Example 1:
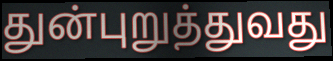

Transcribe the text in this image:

துன்புறுத்துவது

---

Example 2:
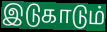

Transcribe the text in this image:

இடுகாடும்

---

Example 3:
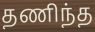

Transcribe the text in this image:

தணிந்த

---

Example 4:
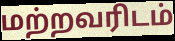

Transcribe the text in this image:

மற்றவரிடம்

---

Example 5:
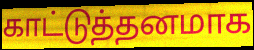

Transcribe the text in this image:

காட்டுத்தனமாக